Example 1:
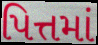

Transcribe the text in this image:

પિત્તમાં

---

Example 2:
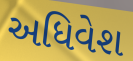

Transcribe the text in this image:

અધિવેશ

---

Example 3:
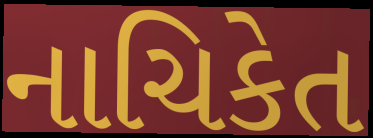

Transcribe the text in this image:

નાચિકેત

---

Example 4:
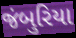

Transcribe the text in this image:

જંબુરિયા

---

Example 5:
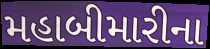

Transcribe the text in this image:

મહાબીમારીના